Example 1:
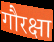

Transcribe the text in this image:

गौरक्षा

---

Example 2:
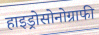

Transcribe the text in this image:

हाइड्रोसोनोग्राफी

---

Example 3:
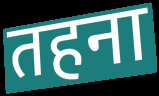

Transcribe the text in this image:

तहना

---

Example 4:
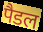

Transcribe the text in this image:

पैडल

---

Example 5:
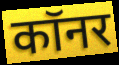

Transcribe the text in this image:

कॉनर